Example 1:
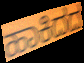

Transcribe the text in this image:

ಹಾಕಿದದ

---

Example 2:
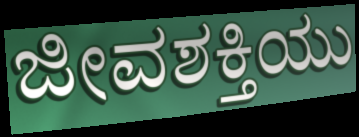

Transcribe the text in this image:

ಜೀವಶಕ್ತಿಯು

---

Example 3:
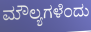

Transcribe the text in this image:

ಮೌಲ್ಯಗಳೆಂದು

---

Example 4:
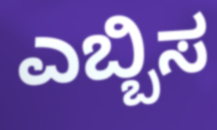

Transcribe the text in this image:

ಎಬ್ಬಿಸ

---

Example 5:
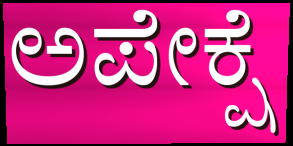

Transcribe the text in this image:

ಅಪೇಕ್ಷೆ